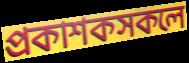
প্ৰকাশকসকলে